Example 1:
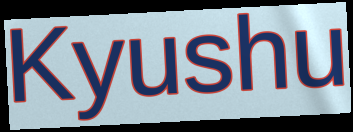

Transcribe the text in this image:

Kyushu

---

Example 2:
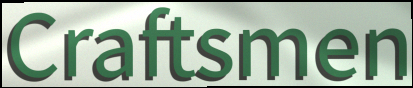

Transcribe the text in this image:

Craftsmen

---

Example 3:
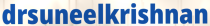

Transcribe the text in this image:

drsuneelkrishnan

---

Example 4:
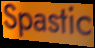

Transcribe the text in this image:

Spastic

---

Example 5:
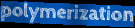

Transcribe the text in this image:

polymerization